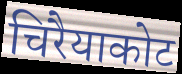
चिरैयाकोट